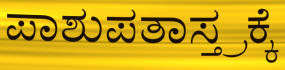
ಪಾಶುಪತಾಸ್ತ್ರಕ್ಕೆ